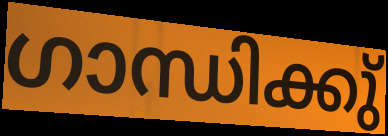
ഗാന്ധിക്കു്